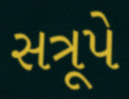
સત્રૂપે